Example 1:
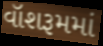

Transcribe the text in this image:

વૉશરૂમમાં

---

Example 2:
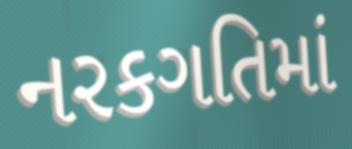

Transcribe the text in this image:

નરકગતિમાં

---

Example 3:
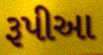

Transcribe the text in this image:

રૂપીઆ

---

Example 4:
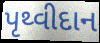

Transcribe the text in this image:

પૃથ્વીદાન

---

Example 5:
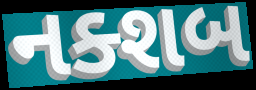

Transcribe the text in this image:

નક્શબ